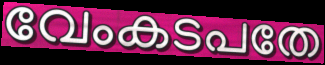
വേംകടപതേ